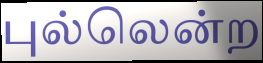
புல்லென்ற